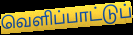
வெளிப்பாட்டுப்